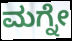
ಮಗ್ನೇ